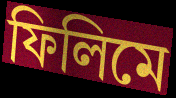
ফিলিমে